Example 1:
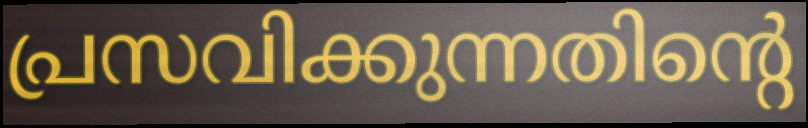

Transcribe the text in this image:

പ്രസവിക്കുന്നതിന്റെ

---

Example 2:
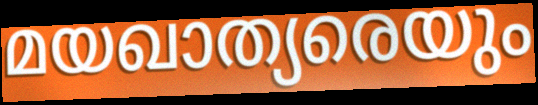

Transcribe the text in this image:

മയഖാത്യരെയും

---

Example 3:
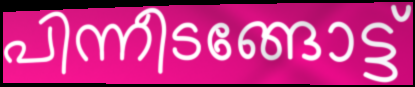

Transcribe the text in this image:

പിന്നീടങ്ങോട്ട്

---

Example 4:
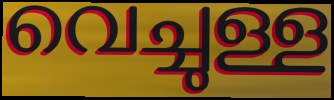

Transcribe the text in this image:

വെച്ചുള്ള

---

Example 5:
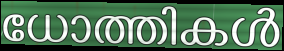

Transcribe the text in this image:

ധോത്തികൾ